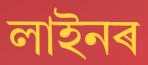
লাইনৰ